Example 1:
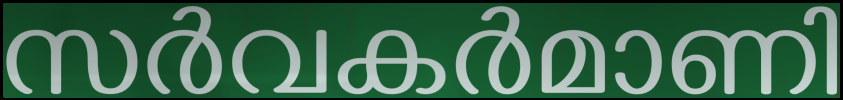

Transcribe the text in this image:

സർവകർമാണി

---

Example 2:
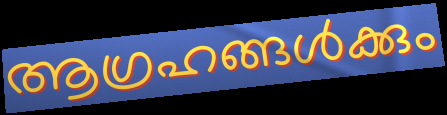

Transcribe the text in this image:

ആഗ്രഹങ്ങൾക്കും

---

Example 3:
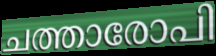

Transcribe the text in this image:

ചത്താരോപി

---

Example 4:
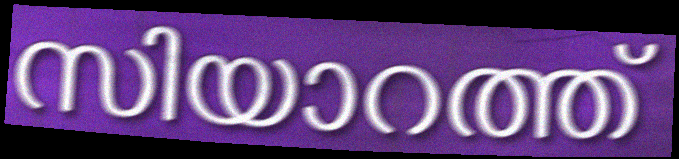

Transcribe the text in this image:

സിയാറത്ത്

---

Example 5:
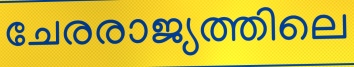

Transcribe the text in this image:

ചേരരാജ്യത്തിലെ